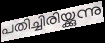
പതിച്ചിരിയ്ക്കുന്നു